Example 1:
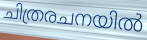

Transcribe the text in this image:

ചിത്രരചനയിൽ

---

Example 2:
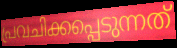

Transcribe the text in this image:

പ്രവചിക്കപ്പെടുന്നത്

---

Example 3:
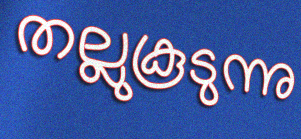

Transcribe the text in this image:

തല്ലുകൂടുന്നു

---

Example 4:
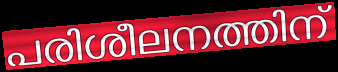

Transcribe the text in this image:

പരിശീലനത്തിന്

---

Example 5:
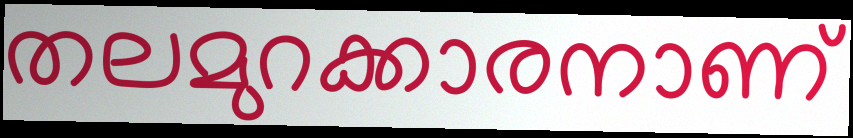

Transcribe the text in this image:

തലമുറക്കാരനാണ്